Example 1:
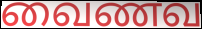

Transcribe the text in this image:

வைணவ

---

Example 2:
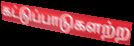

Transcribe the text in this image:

கட்டுப்பாடுகளற்ற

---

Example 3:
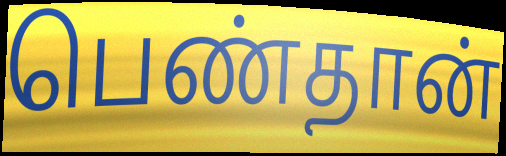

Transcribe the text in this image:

பெண்தான்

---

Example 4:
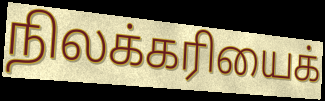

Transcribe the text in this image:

நிலக்கரியைக்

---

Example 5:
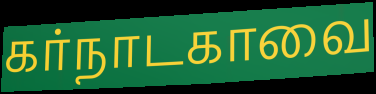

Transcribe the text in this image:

கர்நாடகாவை